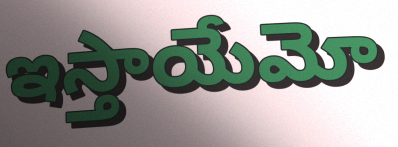
ఇస్తాయేమో